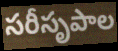
సరీసృపాల